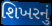
શિખરનું